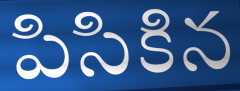
పిసికిన